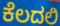
ಕೆಲದಲಿ